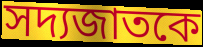
সদ্যজাতকে